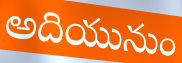
అదియునుం